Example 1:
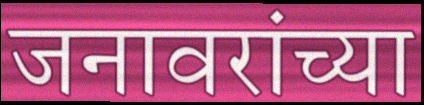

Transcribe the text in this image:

जनावरांच्या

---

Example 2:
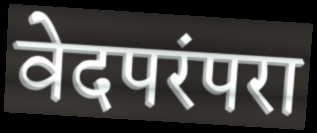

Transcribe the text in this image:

वेदपरंपरा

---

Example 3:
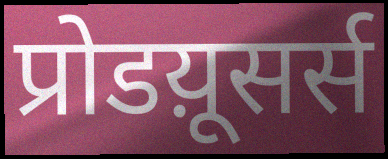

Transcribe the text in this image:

प्रोडय़ूसर्स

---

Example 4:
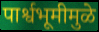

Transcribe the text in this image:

पार्श्वभूमीमुळे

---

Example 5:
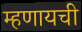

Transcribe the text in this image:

म्हणायची